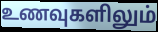
உணவுகளிலும்